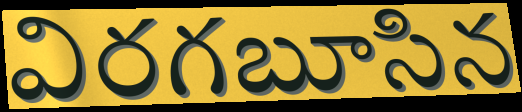
విరగబూసిన